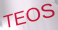
TEOS